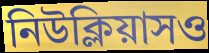
নিউক্লিয়াসও